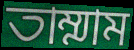
তাম্মাম